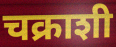
चक्राशी